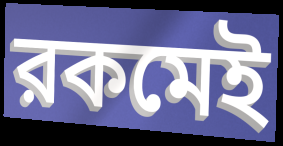
রকমেই